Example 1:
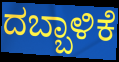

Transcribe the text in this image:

ದಬ್ಬಾಳಿಕೆ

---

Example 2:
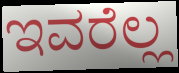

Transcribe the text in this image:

ಇವರೆಲ್ಲ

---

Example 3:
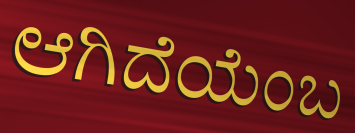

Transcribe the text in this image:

ಆಗಿದೆಯೆಂಬ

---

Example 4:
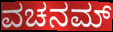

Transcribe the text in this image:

ವಚನಮ್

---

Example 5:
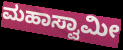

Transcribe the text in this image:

ಮಹಾಸ್ವಾಮೀ